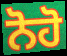
ਨੋਹੋ